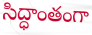
సిద్ధాంతంగా